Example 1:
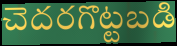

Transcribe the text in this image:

చెదరగొట్టబడి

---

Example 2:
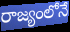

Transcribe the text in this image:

రాజ్యంలోనే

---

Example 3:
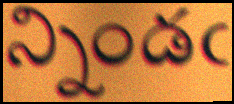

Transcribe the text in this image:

న్నిండఁ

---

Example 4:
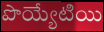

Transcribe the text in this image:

పొయ్యేటియి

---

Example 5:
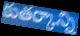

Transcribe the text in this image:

కుతర్కాన్ని